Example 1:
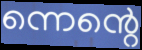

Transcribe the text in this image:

ന്നെന്റെ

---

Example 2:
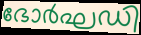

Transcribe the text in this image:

ഭോർഘഡി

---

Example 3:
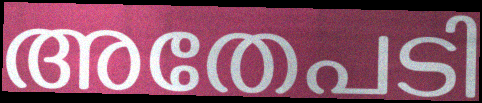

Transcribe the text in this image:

അതേപടി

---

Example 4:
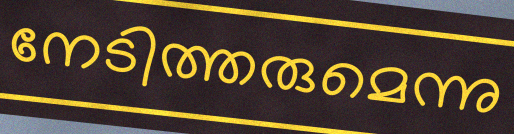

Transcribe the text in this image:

നേടിത്തരുമെന്നു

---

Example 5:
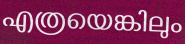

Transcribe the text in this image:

എത്രയെങ്കിലും